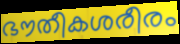
ഭൗതീകശരീരം